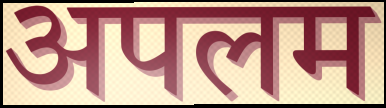
अपलम